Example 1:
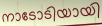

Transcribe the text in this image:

നാടോടിയായി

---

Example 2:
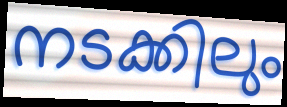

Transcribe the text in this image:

നടക്കിലും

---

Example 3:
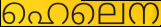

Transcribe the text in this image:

ഹെലെന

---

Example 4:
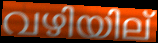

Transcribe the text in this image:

വഴിയില്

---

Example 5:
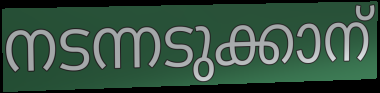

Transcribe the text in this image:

നടന്നടുക്കാന്